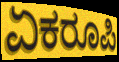
ಏಕರೂಪಿ